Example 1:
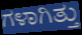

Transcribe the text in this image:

ಗಳಾಗಿತ್ತು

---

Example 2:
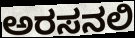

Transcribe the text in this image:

ಅರಸನಲಿ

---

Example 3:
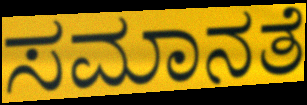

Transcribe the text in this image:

ಸಮಾನತೆ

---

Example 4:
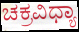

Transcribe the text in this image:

ಚಕ್ರವಿಧ್ಯಾ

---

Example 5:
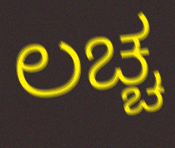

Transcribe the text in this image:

ಲಚ್ಚ